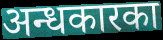
अन्धकारका